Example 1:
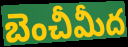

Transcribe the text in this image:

బెంచీమీద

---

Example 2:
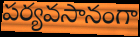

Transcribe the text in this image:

పర్యవసానంగా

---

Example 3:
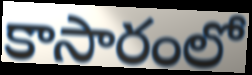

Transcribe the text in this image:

కాసారంలో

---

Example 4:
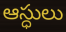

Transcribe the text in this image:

ఆస్ధులు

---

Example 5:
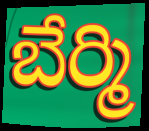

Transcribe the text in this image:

బేర్మి